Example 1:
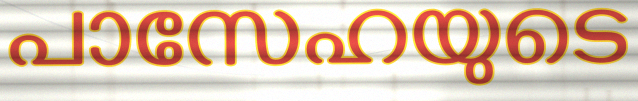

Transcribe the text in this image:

പാസേഹയുടെ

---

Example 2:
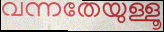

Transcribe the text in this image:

വന്നതേയുള്ളൂ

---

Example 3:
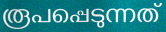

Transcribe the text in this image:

രൂപപ്പെടുന്നത്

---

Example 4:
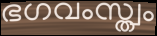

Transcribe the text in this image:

ഭഗവംസ്ത്വം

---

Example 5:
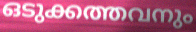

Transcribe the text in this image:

ഒടുക്കത്തവനും